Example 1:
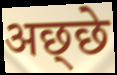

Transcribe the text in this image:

अछ्छे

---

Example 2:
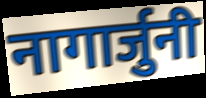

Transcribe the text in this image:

नागार्जुनी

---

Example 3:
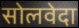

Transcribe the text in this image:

सोलवेदा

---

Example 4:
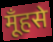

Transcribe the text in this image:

मूँहसे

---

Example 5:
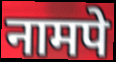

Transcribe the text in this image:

नामपे